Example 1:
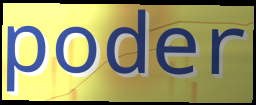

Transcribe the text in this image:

poder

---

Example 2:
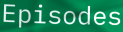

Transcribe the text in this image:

Episodes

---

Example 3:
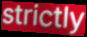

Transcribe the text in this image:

strictly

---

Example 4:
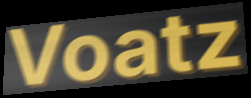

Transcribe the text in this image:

Voatz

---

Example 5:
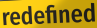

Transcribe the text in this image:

redefined